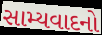
સામ્યવાદનો